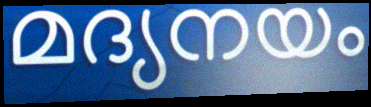
മദ്യനയം